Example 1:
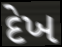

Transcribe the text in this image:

દેખ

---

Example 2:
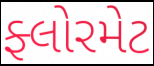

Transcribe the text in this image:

ફ્લોરમેટ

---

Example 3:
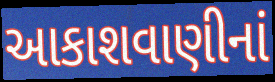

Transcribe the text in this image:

આકાશવાણીનાં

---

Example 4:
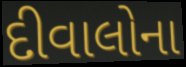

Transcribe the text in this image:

દીવાલોના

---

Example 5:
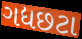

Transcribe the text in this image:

ગદ્યછટા